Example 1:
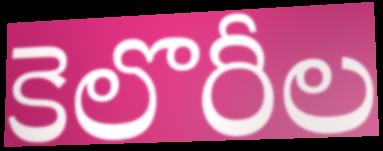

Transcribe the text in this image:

కెలొరీల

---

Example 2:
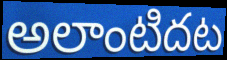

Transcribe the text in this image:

అలాంటిదట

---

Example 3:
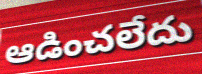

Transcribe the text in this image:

ఆడించలేదు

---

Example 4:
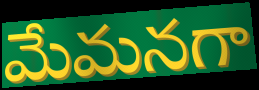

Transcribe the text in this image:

మేమనగా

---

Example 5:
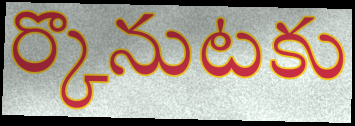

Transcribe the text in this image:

ర్కొనుటకు